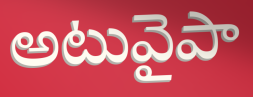
అటువైపా